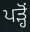
ਪੜ੍ਹੋਂ